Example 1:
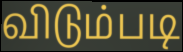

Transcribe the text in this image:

விடும்படி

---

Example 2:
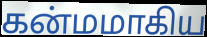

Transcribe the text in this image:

கன்மமாகிய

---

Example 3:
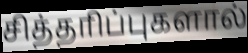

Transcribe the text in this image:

சித்தரிப்புகளால்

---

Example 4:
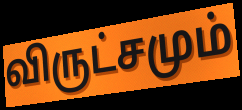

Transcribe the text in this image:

விருட்சமும்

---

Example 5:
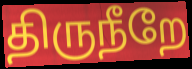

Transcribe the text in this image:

திருநீறே